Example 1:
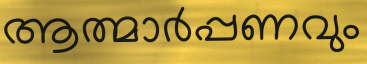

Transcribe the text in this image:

ആത്മാർപ്പണവും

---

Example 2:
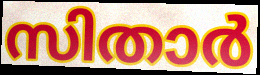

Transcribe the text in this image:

സിതാർ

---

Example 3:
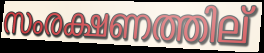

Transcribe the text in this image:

സംരക്ഷണത്തില്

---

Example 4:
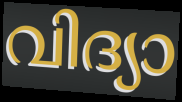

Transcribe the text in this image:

വിദ്യാ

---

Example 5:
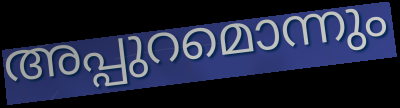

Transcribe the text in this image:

അപ്പുറമൊന്നും